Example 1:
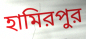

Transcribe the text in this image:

হামিরপুর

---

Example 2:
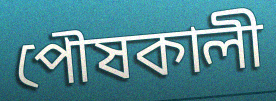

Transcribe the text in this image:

পৌষকালী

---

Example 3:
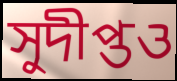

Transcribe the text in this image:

সুদীপ্তও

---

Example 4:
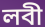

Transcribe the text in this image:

লবী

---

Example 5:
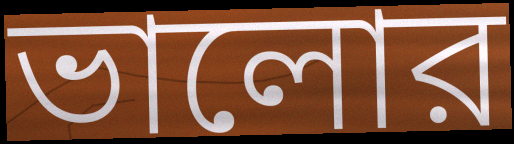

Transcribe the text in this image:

ভালোর